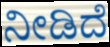
ನೀಡಿದೆ